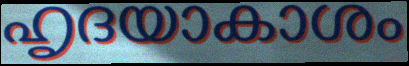
ഹൃദയാകാശം